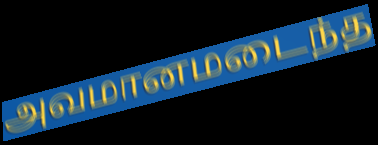
அவமானமடைந்த